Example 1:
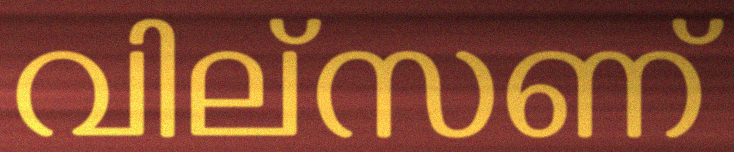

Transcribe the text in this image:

വില്സണ്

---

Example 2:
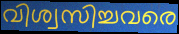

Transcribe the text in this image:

വിശ്വസിച്ചവരെ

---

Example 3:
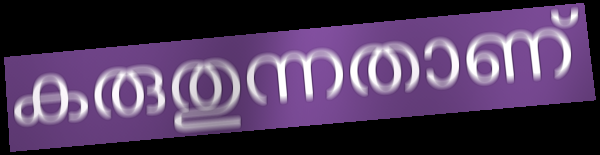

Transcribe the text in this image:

കരുതുന്നതാണ്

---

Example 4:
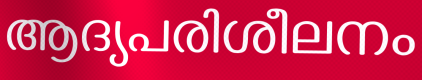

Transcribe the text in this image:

ആദ്യപരിശീലനം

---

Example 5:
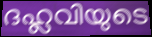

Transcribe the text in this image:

ദഹ്ലവിയുടെ